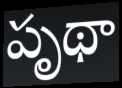
పృథా